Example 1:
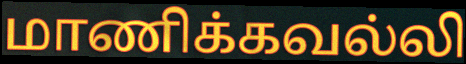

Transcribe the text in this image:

மாணிக்கவல்லி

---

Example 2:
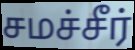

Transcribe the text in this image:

சமச்சீர்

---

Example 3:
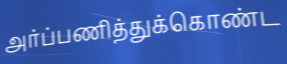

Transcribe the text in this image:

அர்ப்பணித்துக்கொண்ட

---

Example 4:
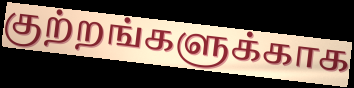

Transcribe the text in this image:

குற்றங்களுக்காக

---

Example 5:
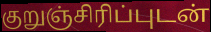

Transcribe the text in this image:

குறுஞ்சிரிப்புடன்